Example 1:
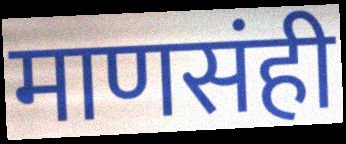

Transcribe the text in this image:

माणसंही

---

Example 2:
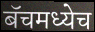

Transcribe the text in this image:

बॅचमध्येच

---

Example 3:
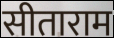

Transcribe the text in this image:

सीताराम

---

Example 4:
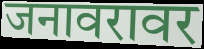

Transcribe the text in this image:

जनावरावर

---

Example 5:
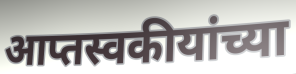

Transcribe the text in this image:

आप्तस्वकीयांच्या